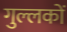
गुल्लकों